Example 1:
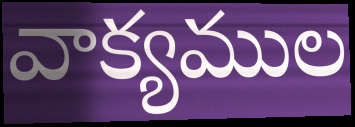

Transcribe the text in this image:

వాక్యముల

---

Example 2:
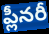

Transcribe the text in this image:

ప్లీనరీ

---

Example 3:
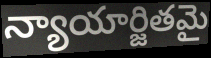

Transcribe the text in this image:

న్యాయార్జితమై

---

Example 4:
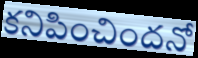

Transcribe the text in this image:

కనిపించిందనో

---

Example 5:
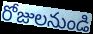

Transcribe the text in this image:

రోజులనుండి